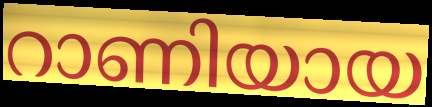
റാണിയായ